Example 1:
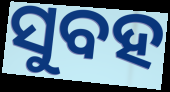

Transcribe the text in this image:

ସୁବହ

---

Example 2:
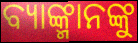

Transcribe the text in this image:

ବ୍ୟାଙ୍କ୍ମାନଙ୍କୁ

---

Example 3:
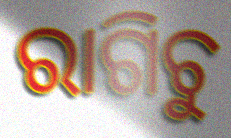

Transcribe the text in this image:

ରାଗିଚୁ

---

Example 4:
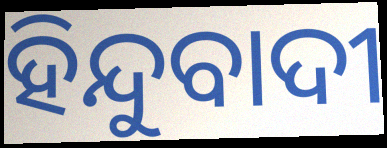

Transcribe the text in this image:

ହିନ୍ଦୁବାଦୀ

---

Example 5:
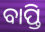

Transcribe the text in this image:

ବାପ୍ତି